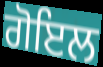
ਗੋਇਲ